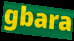
gbara